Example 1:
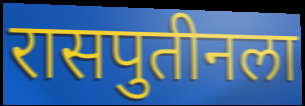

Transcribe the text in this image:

रासपुतीनला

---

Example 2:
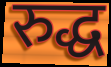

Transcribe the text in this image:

रुद्ध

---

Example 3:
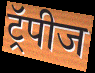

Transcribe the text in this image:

ट्रॅपीज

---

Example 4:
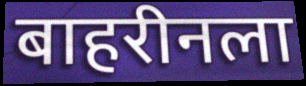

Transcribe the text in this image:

बाहरीनला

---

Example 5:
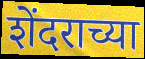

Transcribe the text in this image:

शेंदराच्या